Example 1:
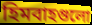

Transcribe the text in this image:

হিমবাহগুলো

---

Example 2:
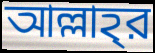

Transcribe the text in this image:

আল্লাহ্‌র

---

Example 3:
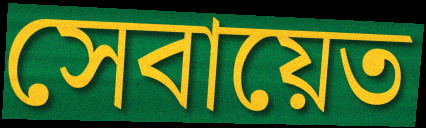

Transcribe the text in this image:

সেবায়েত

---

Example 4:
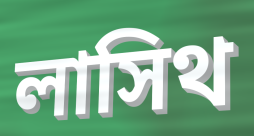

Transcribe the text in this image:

লাসিথ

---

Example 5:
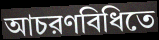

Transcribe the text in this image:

আচরণবিধিতে